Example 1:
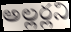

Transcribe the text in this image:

అల్లర్లని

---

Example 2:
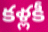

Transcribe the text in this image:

కళ్లకీ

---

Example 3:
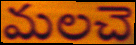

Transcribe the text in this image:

మలచె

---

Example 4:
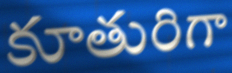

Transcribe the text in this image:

కూతురిగా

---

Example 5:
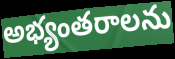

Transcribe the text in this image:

అభ్యంతరాలను